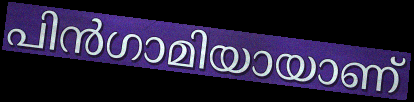
പിൻഗാമിയായാണ്